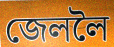
জেললৈ